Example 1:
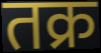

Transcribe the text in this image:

तक्र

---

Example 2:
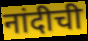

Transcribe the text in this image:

नांदीची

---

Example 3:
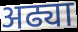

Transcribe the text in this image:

अढ्या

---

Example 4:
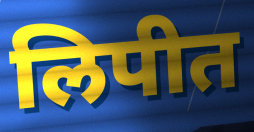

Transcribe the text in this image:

लिपीत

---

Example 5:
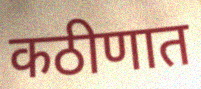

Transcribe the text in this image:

कठीणात